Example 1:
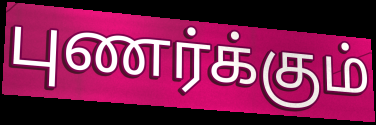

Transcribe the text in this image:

புணர்க்கும்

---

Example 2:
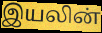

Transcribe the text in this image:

இயலின்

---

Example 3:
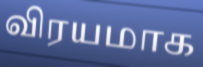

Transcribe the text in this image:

விரயமாக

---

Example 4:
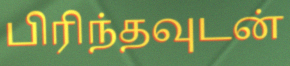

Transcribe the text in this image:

பிரிந்தவுடன்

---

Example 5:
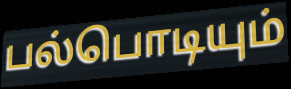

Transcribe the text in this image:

பல்பொடியும்